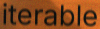
iterable